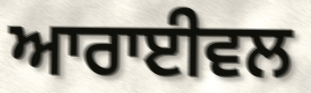
ਆਰਾਈਵਲ